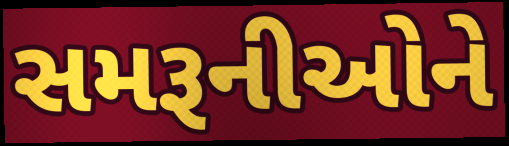
સમરૂનીઓને